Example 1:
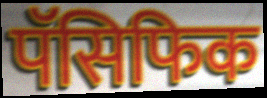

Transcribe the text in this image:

पॅसिफिक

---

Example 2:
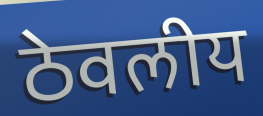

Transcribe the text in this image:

ठेवलीय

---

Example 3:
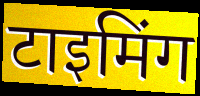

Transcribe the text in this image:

टाइमिंग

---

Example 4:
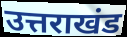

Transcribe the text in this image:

उत्तराखंड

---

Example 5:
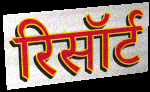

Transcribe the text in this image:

रिसॉर्ट